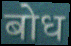
बोध